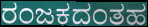
ರಂಜಕದಂತಹ